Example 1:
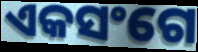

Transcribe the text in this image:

ଏକସଂଗେ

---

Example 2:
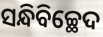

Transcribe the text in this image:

ସନ୍ଧିବିଚ୍ଛେଦ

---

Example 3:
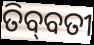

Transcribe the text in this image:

ତିବ୍‌ବତୀ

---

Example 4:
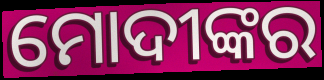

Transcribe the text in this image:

ମୋଦୀଙ୍କର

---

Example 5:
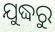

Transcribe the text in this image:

ଯୁଦ୍ଧରୁ